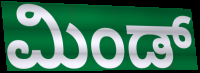
ಮಿಂಡ್